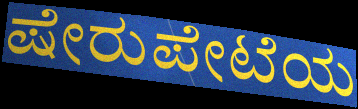
ಷೇರುಪೇಟೆಯ